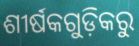
ଶୀର୍ଷକଗୁଡ଼ିକରୁ